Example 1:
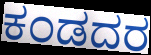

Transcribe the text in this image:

ಕಂಡದರ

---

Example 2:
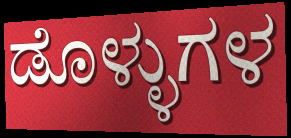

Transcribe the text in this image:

ಡೊಳ್ಳುಗಳ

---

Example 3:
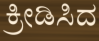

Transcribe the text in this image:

ಕ್ರೀಡಿಸಿದ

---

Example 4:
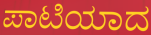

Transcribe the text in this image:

ಪಾಟಿಯಾದ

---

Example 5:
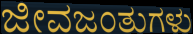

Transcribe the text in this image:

ಜೀವಜಂತುಗಳು